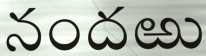
నందఱు